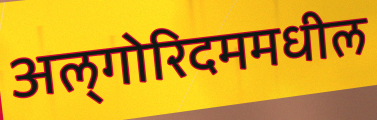
अल्गोरिदममधील